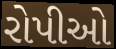
રોપીઓ